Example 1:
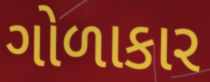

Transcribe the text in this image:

ગોળાકાર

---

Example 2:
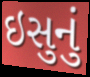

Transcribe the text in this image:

ઇસુનું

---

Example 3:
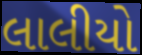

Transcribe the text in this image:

લાલીયો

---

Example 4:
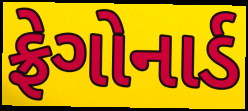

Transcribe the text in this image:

ફ્રેગોનાર્ડ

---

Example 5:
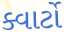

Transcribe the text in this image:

ક્વાર્ટો